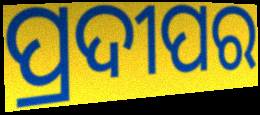
ପ୍ରଦୀପର